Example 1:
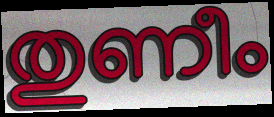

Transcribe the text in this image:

തുണീം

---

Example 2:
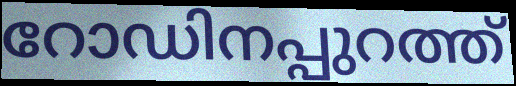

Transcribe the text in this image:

റോഡിനപ്പുറത്ത്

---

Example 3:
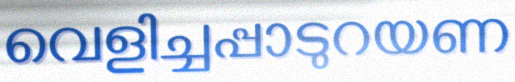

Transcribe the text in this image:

വെളിച്ചപ്പാടുറയണ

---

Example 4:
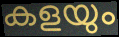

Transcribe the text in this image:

കളയും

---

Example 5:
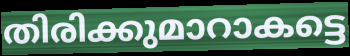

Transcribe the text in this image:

തിരിക്കുമാറാകട്ടെ